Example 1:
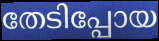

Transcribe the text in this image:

തേടിപ്പോയ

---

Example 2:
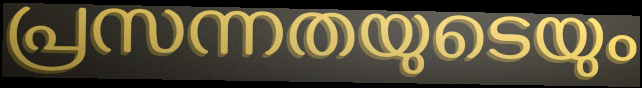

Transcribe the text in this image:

പ്രസന്നതയുടെയും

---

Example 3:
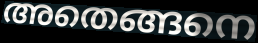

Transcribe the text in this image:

അതെങ്ങനെ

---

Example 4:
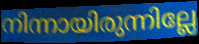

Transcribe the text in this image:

നിന്നായിരുന്നില്ലേ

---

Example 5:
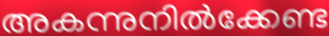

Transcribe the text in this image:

അകന്നുനിൽക്കേണ്ട